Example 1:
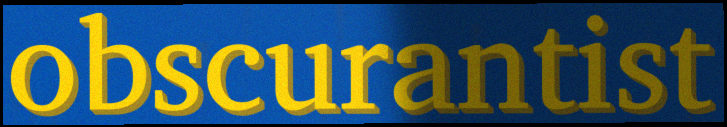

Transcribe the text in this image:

obscurantist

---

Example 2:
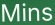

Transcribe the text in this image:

Mins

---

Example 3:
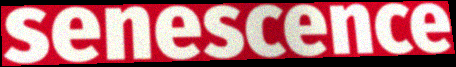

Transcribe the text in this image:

senescence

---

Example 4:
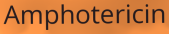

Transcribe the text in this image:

Amphotericin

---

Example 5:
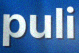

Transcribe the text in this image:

puli